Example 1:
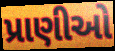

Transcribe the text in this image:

પ્રાણીઓ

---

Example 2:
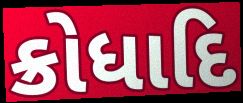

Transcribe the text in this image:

ક્રોધાદિ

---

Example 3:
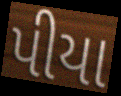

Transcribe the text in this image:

પીયા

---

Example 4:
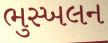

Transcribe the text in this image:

ભુસ્ખલન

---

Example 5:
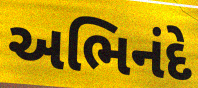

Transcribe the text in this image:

અભિનંદે